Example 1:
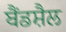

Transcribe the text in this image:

ਬੈਂਡਸ਼ੈਲ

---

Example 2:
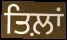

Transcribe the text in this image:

ਤਿਲ਼ਾਂ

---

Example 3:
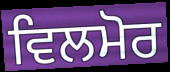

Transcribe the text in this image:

ਵਿਲਮੋਰ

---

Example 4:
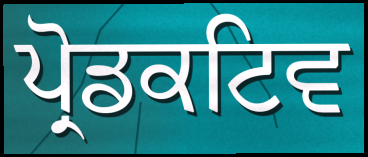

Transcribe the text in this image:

ਪ੍ਰੋਡਕਟਿਵ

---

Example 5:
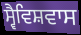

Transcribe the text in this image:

ਸ੍ਵੈਵਿਸ਼ਵਾਸ